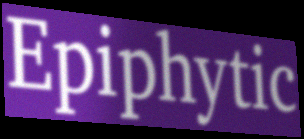
Epiphytic